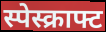
स्पेस्क्राफ्ट